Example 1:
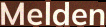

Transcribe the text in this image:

Melden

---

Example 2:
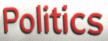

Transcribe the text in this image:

Politics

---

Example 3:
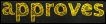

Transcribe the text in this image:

approves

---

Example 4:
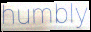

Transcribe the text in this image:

humbly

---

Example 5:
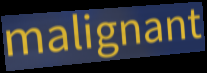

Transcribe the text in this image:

malignant